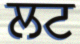
ਲਟ